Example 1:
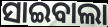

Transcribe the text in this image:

ସାଇବାଲା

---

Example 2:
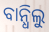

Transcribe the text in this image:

ବାନ୍ଧିଲୁ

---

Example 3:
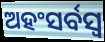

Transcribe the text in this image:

ଅହଂସର୍ବସ୍ୱ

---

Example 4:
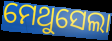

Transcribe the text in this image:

ମେଥୁସେଲା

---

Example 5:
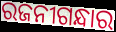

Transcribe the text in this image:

ରଜନୀଗନ୍ଧାର